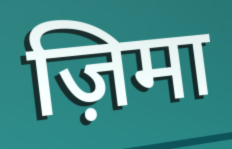
ज़िमा